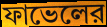
ফাভেলের